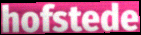
hofstede